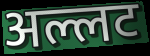
अल्लट